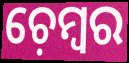
ଚ଼େମ୍ୱର